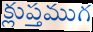
క్లుప్తముగ